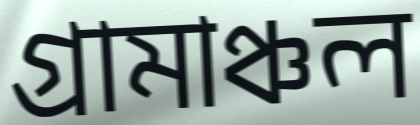
গ্ৰামাঞ্চল